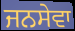
ਜਨਸੇਵਾ